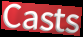
Casts